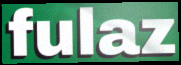
fulaz